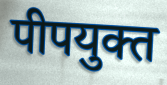
पीपयुक्त